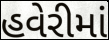
હવેરીમાં